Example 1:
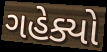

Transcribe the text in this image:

ગહેક્યો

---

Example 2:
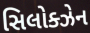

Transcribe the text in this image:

સિલોક્ઝેન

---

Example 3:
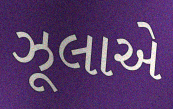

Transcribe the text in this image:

ઝૂલાએ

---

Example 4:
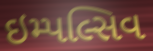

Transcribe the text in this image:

ઇમ્પલ્સિવ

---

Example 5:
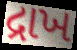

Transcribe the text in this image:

દ્રાખ